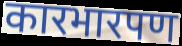
कारभारपण